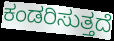
ಕಂಡರಿಸುತ್ತದೆ